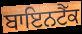
ਬਾਇਨਟੈੱਕ